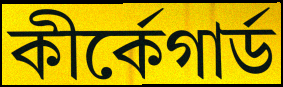
কীর্কেগার্ড